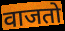
वाजतो